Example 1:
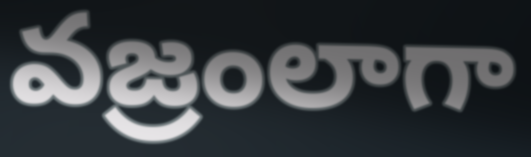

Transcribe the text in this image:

వజ్రంలాగా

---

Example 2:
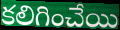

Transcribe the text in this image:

కలిగించేయి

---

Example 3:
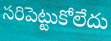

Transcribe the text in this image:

సరిపెట్టుకోలేదు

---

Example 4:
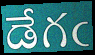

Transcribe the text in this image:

డేగఁ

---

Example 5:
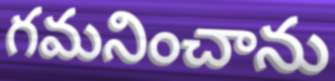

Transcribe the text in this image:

గమనించాను